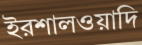
ইরশালওয়াদি